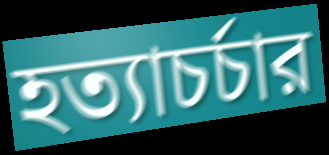
হত্যাচর্চার